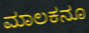
ಮಾಲಕನೂ